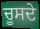
ਚੂਸਦੇ